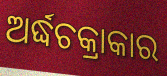
ଅର୍ଦ୍ଧଚକ୍ରାକାର